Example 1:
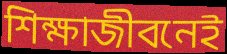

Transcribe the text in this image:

শিক্ষাজীবনেই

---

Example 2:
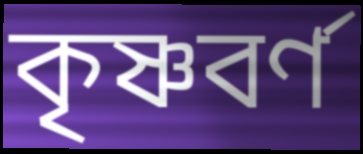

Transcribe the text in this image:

কৃষ্ণবর্ণ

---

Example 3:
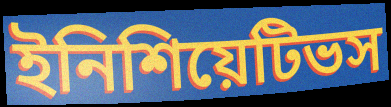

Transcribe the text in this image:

ইনিশিয়েটিভস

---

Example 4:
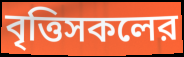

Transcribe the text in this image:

বৃত্তিসকলের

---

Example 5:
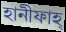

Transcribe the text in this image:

হানীফাহ্